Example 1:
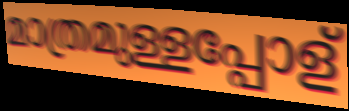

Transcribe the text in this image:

മാത്രമുള്ളപ്പോള്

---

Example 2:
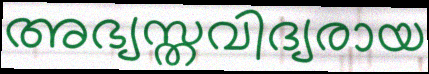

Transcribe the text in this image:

അഭ്യസ്തവിദ്യരായ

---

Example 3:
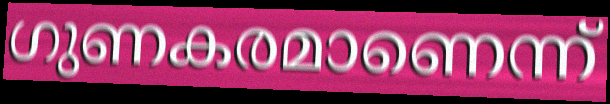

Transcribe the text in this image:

ഗുണകരമാണെന്ന്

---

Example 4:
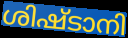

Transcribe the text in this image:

ശിഷ്ടാനി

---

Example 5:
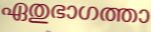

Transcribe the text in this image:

ഏതുഭാഗത്താ